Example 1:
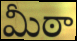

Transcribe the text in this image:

మీఠా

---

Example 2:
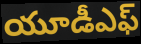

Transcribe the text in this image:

యూడీఎఫ్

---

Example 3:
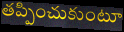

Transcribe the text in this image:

తప్పించుకుంటూ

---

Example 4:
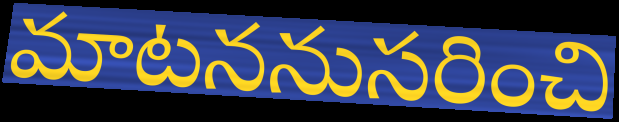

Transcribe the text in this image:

మాటననుసరించి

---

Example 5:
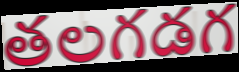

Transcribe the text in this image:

తలగడగ